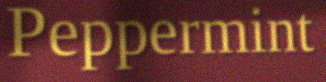
Peppermint